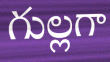
గుల్లగా